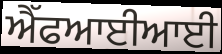
ਐੱਫਆਈਆਈ